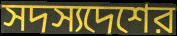
সদস্যদেশের